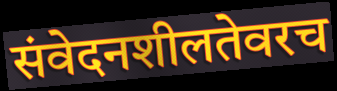
संवेदनशीलतेवरच